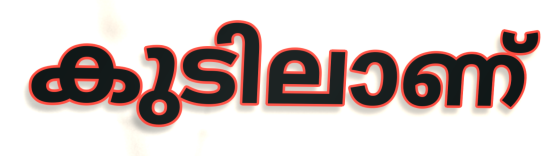
കുടിലാണ്